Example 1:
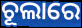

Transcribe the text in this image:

ଚୂଲାରେ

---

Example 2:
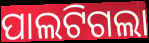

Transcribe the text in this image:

ପାଲଟିଗଲା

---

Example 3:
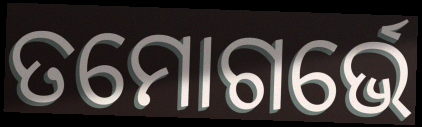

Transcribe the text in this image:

ତମୋଗର୍ଭେ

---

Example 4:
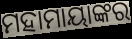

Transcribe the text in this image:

ମହାମାୟାଙ୍କର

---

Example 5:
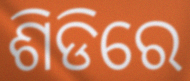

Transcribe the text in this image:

ଶିଡିରେ